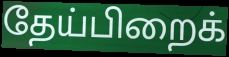
தேய்பிறைக்